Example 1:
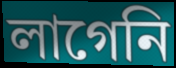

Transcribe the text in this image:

লাগেনি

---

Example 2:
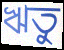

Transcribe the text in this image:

ঋতু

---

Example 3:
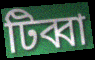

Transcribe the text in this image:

টিব্বা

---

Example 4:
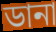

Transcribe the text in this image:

ডানা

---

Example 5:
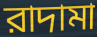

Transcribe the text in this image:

রাদামা